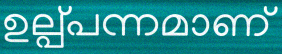
ഉല്പ്പന്നമാണ്